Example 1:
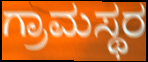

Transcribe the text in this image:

ಗ್ರಾಮಸ್ಥರ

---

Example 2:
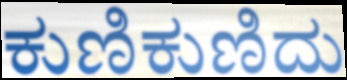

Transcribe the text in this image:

ಕುಣಿಕುಣಿದು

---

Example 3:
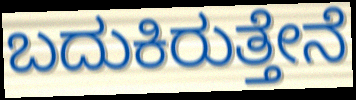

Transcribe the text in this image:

ಬದುಕಿರುತ್ತೇನೆ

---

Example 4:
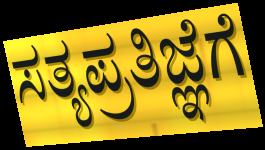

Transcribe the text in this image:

ಸತ್ಯಪ್ರತಿಜ್ಞೆಗೆ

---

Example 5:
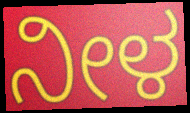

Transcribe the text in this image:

ನೀಳ